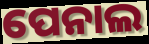
ପେନାଲ